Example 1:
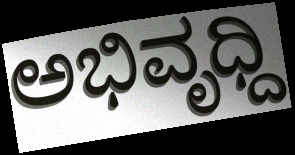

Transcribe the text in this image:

ಅಭಿವೃಧ್ದಿ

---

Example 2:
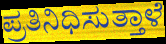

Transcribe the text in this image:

ಪ್ರತಿನಿಧಿಸುತ್ತಾಳೆ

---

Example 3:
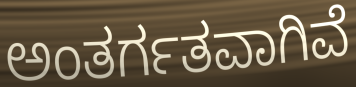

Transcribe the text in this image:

ಅಂತರ್ಗತವಾಗಿವೆ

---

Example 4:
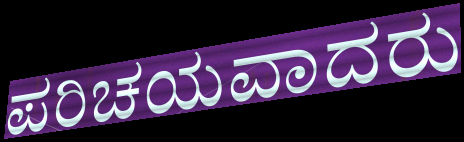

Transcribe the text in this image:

ಪರಿಚಯವಾದರು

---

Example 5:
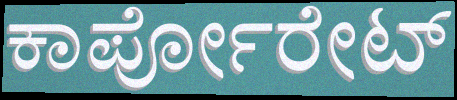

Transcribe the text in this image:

ಕಾರ್ಪೋರೇಟ್